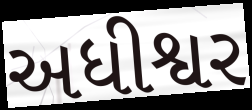
અધીશ્વર